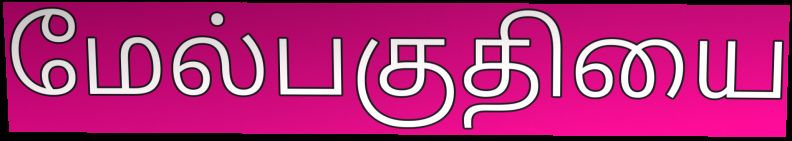
மேல்பகுதியை